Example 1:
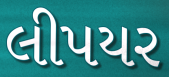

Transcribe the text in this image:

લીપયર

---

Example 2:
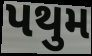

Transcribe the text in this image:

પથુમ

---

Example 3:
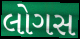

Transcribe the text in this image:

લોગસ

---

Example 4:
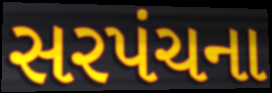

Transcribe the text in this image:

સરપંચના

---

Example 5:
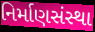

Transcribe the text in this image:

નિર્માણસંસ્થા